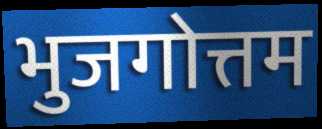
भुजगोत्तम